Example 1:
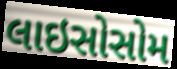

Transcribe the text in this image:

લાઇસોસોમ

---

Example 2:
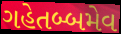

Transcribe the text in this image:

ગહેતબ્બમેવ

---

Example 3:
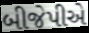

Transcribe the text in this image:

બીજેપીએ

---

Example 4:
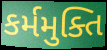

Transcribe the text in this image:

કર્મમુક્તિ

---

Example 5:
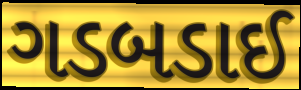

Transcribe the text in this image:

ગડબડાઈ